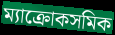
ম্যাক্রোকসমিক